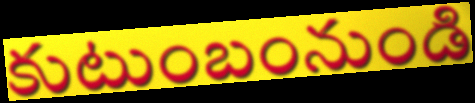
కుటుంబంనుండి